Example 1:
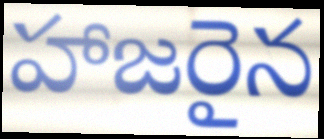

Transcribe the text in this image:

హాజరైన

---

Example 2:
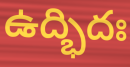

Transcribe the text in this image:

ఉద్భిదః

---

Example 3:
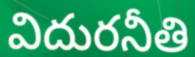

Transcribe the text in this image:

విదురనీతి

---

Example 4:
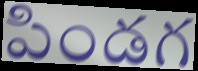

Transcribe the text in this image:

పిండగ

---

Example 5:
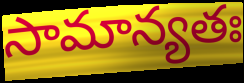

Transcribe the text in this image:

సామాన్యతః